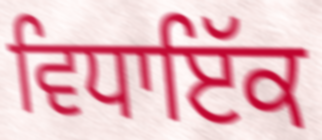
ਵਿਧਾਇੱਕ